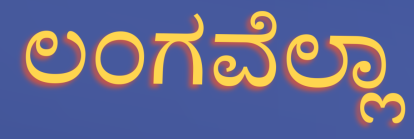
ಲಂಗವೆಲ್ಲಾ